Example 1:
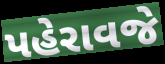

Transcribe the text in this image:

પહેરાવજે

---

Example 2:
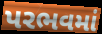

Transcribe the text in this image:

પરભવમાં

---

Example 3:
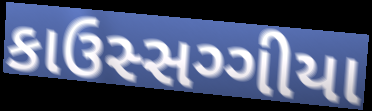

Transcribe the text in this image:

કાઉસ્સગ્ગીયા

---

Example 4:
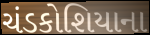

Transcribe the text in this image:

ચંડકોશિયાના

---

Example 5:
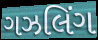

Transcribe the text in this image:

ગઝલિંગ